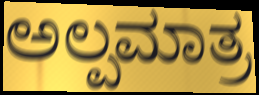
ಅಲ್ಪಮಾತ್ರ